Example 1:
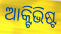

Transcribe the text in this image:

ଆକ୍ଟିଭିଷ୍ଟ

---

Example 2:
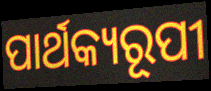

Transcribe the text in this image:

ପାର୍ଥକ୍ୟରୂପୀ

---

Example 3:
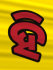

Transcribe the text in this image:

ହି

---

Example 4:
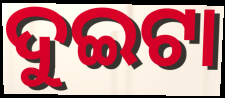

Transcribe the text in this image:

ଦୁଇଟା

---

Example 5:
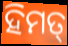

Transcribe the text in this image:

ହିମତ୍